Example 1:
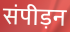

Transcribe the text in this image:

संपीड़न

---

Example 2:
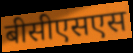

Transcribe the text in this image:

बीसीएसएस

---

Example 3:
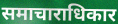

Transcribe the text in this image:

समाचाराधिकार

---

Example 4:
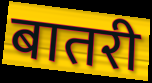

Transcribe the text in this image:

बातरी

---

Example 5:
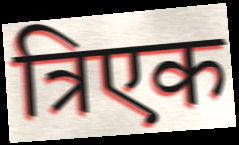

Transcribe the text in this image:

त्रिएक